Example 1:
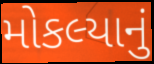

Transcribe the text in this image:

મોકલ્યાનું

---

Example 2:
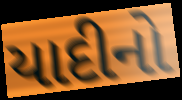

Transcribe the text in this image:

યાદીનો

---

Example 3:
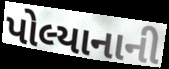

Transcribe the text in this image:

પોલ્યાનાની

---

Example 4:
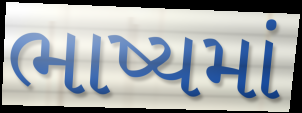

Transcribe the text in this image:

ભાષ્યમાં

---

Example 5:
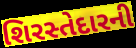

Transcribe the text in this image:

શિરસ્તેદારની